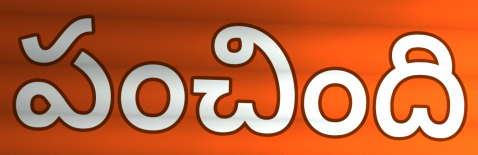
పంచింది